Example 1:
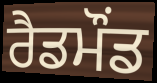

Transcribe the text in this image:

ਰੈਡਮੌਂਡ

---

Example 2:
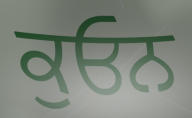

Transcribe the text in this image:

ਕੁਓਨ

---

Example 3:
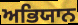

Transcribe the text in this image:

ਅਭਿਯਾਨ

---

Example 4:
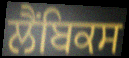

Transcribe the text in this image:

ਲੈਂਬਿਕਸ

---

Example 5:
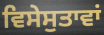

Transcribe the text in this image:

ਵਿਸੇਸੁਤਾਵਾਂ